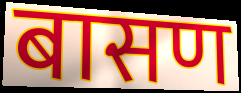
बासण